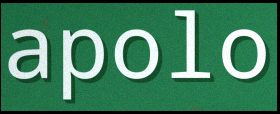
apolo